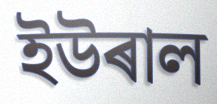
ইউৰাল